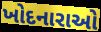
ખોદનારાઓ